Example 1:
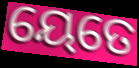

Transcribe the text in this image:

ୟେତେ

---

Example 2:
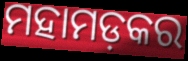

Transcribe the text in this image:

ମହାମଡ଼କର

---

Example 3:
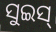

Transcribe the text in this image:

ସୁଇସ୍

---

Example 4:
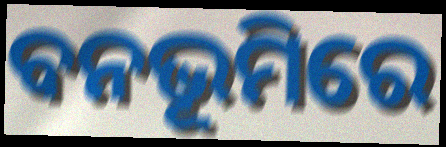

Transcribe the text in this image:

ବନଭୂମିରେ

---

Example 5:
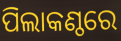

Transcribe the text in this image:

ପିଲାକଣ୍ଠରେ